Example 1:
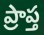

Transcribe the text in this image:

ప్రాప్త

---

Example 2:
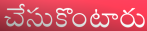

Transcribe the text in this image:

చేసుకొంటారు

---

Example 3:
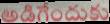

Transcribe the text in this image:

అడిగేందుకు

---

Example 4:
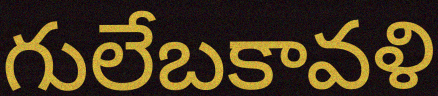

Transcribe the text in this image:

గులేబకావళి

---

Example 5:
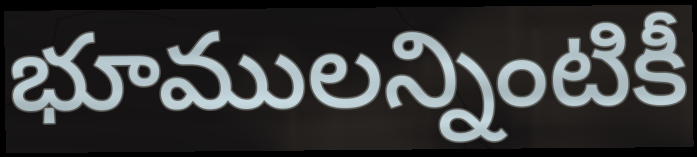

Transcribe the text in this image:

భూములన్నింటికీ